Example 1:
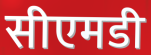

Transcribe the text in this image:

सीएमडी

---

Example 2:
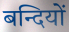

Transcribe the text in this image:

बन्दियों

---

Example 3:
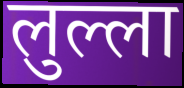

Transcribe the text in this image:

लुल्ला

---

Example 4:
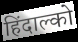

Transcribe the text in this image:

हिंदाल्को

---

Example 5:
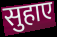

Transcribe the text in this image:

सुहाए